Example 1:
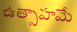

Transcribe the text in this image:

ఉత్సాహమే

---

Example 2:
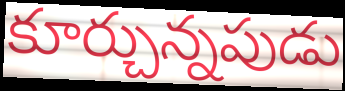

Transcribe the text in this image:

కూర్చున్నపుడు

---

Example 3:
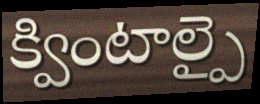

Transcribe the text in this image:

క్వింటాల్పై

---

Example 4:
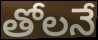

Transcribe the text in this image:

తోలనే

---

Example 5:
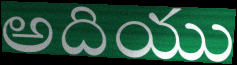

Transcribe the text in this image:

అదియు